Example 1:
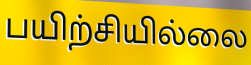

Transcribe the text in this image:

பயிற்சியில்லை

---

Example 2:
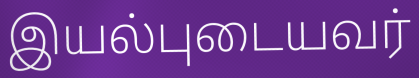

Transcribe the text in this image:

இயல்புடையவர்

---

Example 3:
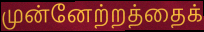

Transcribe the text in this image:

முன்னேற்றத்தைக்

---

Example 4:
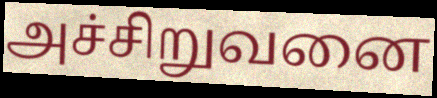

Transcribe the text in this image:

அச்சிறுவனை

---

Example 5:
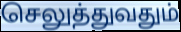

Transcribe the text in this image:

செலுத்துவதும்